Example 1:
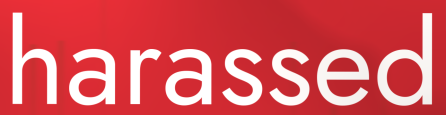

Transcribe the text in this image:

harassed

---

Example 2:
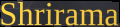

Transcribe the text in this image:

Shrirama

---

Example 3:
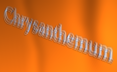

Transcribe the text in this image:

Chrysanthemum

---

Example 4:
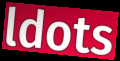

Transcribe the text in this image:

ldots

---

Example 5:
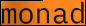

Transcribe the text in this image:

monad